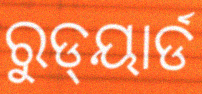
ରୁଡ୍‌ୟାର୍ଡ